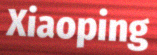
Xiaoping